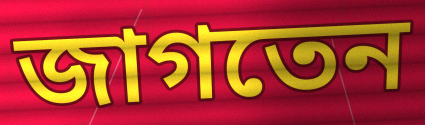
জাগতেন